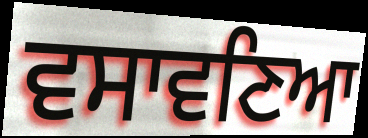
ਵਸਾਵਣਿਆ